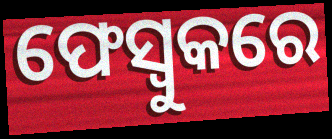
ଫେସ୍ବୁକରେ